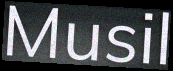
Musil